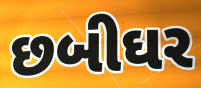
છબીઘર